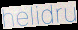
helidru